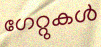
ഗേറ്റുകൾ